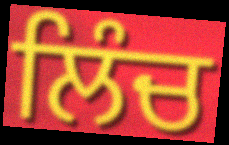
ਲਿੰਚ